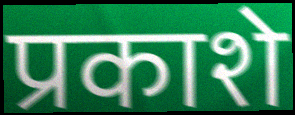
प्रकाशे